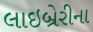
લાઇબ્રેરીના